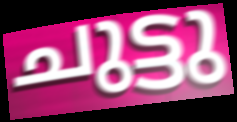
ചുട്ടു